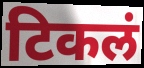
टिकलं